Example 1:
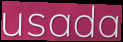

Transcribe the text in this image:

usada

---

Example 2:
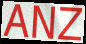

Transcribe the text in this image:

ANZ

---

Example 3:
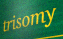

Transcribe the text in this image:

trisomy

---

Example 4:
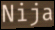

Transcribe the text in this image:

Nija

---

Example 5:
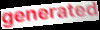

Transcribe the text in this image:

generated